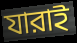
যারাই